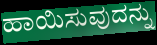
ಹಾಯಿಸುವುದನ್ನು